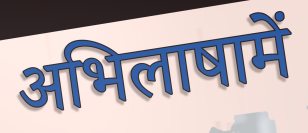
अभिलाषामें